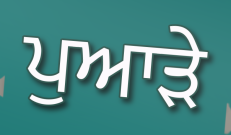
ਪੁਆੜੇ